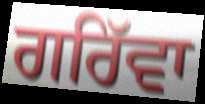
ਗਰਿੱਵਾ